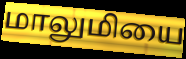
மாலுமியை